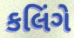
કલિંગે